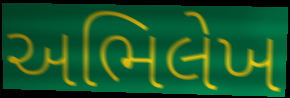
અભિલેખ